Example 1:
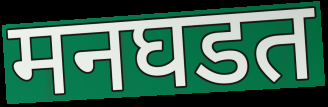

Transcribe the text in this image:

मनघडत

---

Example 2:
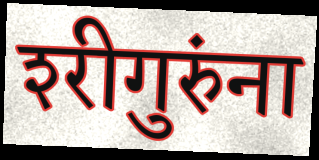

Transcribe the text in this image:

श्रीगुरुंना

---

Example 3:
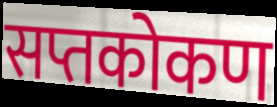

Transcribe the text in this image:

सप्तकोकण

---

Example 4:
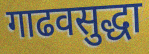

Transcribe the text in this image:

गाढवसुद्धा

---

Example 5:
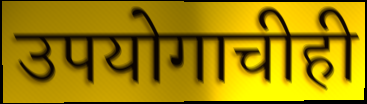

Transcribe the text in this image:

उपयोगाचीही